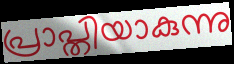
പ്രാപ്തിയാകുന്നു